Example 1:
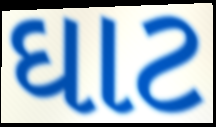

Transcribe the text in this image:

ઘાટ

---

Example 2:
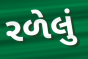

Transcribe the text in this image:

રળેલું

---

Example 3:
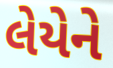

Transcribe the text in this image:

લેયેને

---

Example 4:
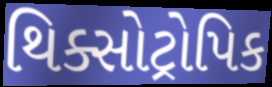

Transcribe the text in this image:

થિક્સોટ્રોપિક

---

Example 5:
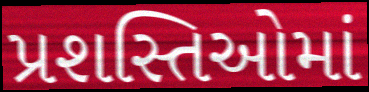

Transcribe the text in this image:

પ્રશસ્તિઓમાં